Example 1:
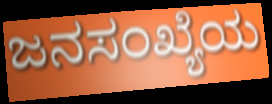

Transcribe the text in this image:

ಜನಸಂಖ್ಯೆಯ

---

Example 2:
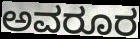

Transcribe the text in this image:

ಅವರೂರ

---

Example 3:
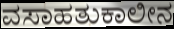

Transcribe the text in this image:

ವಸಾಹತುಕಾಲೀನ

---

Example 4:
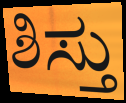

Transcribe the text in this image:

ಶಿಸ್ತು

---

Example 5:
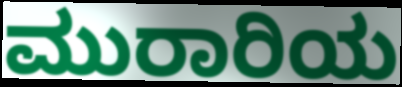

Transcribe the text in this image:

ಮುರಾರಿಯ